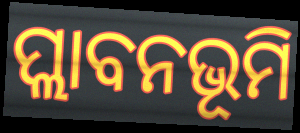
ପ୍ଲାବନଭୂମି